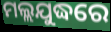
ମଲ୍ଲଯୁଦ୍ଧରେ